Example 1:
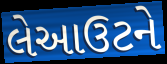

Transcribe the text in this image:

લેઆઉટને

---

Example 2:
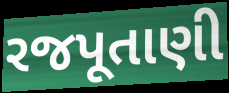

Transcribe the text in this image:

રજપૂતાણી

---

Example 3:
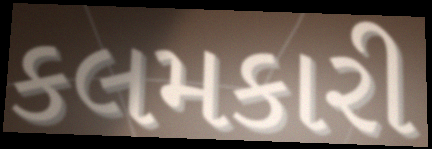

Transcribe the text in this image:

કલમકારી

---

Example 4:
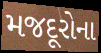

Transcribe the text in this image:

મજદૂરોના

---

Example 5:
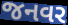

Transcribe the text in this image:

જનવર